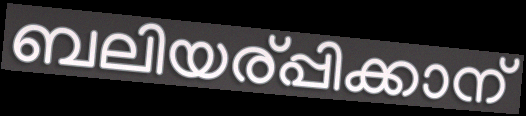
ബലിയര്പ്പിക്കാന്